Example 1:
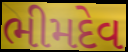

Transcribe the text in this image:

ભીમદેવ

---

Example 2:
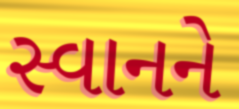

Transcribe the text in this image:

સ્વાનને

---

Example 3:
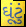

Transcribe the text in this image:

ઘૂંટું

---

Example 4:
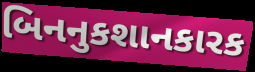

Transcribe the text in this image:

બિનનુકશાનકારક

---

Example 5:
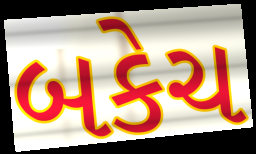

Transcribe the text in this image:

બકેચ